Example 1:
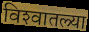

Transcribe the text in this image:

विश्वातल्या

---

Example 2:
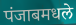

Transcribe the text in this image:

पंजाबमधले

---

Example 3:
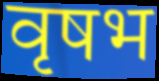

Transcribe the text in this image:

वृषभ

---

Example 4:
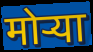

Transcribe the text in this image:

मोऱ्या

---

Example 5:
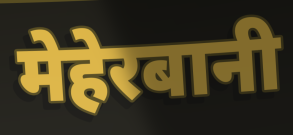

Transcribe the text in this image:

मेहेरबानी